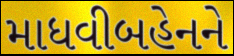
માધવીબહેનને